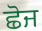
ਛੋਜ